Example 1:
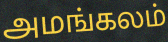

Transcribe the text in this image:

அமங்கலம்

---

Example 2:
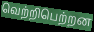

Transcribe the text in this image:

வெற்றிபெற்றன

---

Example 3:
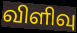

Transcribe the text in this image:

விளிவு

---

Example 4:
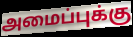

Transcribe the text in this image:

அமைப்புக்கு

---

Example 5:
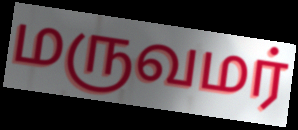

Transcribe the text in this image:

மருவமர்